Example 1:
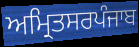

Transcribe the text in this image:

ਅਮ੍ਰਿਤਸਰਪੰਜਾਬ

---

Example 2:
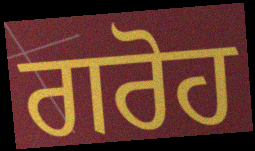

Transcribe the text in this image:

ਗਰੋਹ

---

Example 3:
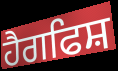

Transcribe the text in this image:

ਹੈਗਫਿਸ਼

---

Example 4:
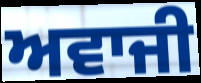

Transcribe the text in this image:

ਅਵਾਜੀ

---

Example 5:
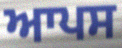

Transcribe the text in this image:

ਆਪਸ